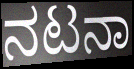
ನಟನಾ